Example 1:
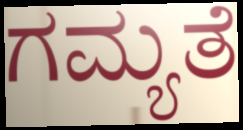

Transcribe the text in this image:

ಗಮ್ಯತೆ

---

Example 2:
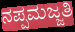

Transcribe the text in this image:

ನಪ್ಪಮಜ್ಜತಿ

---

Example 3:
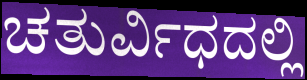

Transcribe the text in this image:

ಚತುರ್ವಿಧದಲ್ಲಿ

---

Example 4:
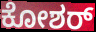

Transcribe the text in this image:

ಕೋಶರ್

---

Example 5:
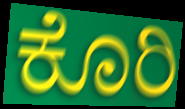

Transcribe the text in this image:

ಕೊರಿ